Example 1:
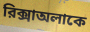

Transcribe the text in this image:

রিক্সাঅলাকে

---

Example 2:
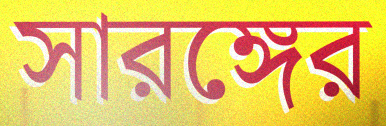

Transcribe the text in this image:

সারঙ্গের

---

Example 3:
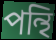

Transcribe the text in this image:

পন্থি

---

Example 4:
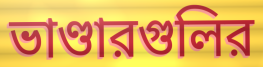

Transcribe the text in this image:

ভাণ্ডারগুলির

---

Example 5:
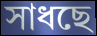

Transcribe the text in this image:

সাধছে